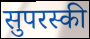
सुपरस्की